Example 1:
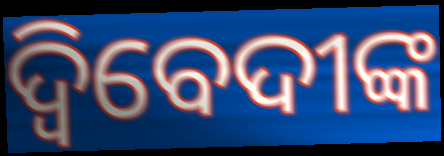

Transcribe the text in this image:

ଦ୍ବିବେଦୀଙ୍କ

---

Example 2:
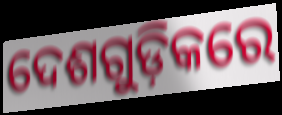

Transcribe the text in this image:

ଦେଶଗୁଡ଼ିକରେ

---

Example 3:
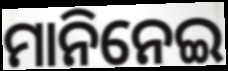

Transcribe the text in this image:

ମାନିନେଇ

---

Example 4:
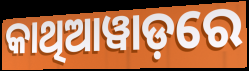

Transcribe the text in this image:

କାଥିଆୱାଡ଼ରେ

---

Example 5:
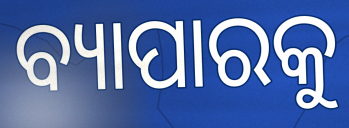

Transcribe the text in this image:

ବ୍ୟାପାରକୁ